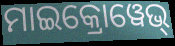
ମାଇକ୍ରୋୱେଭ୍